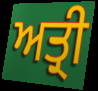
ਅਤ੍ਰੀ